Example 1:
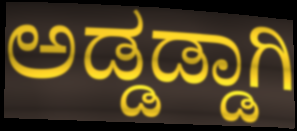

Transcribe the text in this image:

ಅಡ್ಡಡ್ಡಾಗಿ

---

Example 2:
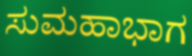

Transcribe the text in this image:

ಸುಮಹಾಭಾಗ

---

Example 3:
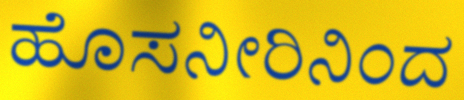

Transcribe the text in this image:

ಹೊಸನೀರಿನಿಂದ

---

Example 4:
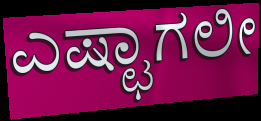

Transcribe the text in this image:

ಎಷ್ಟಾಗಲೀ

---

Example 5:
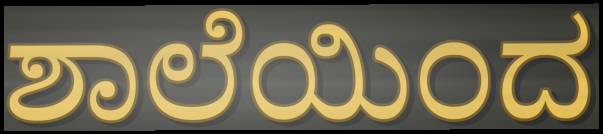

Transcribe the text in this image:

ಶಾಲೆಯಿಂದ